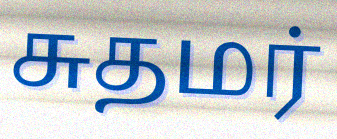
சுதமர்